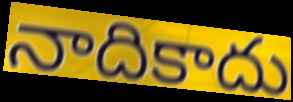
నాదికాదు